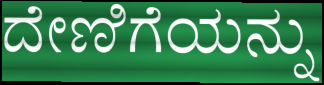
ದೇಣಿಗೆಯನ್ನು